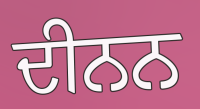
ਦੀਨਨ